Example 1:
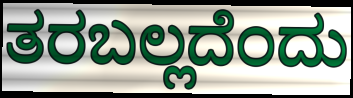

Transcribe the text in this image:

ತರಬಲ್ಲದೆಂದು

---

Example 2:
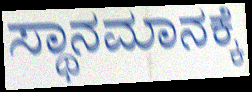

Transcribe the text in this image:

ಸ್ಥಾನಮಾನಕ್ಕೆ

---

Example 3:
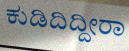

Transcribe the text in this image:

ಕುಡಿದಿದ್ದೀರಾ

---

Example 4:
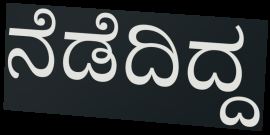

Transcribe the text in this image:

ನೆಡೆದಿದ್ದ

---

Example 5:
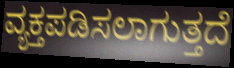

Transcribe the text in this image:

ವ್ಯಕ್ತಪಡಿಸಲಾಗುತ್ತದೆ